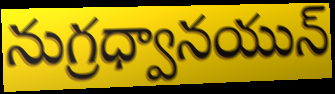
నుగ్రధ్వానయున్